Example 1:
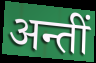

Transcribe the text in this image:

अन्तीं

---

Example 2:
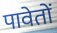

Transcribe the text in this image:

पावेतों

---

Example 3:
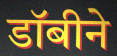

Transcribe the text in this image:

डॉबीने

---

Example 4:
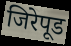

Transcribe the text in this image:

जिरेपूड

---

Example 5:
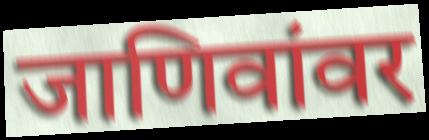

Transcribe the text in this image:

जाणिवांवर